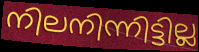
നിലനിന്നിട്ടില്ല